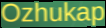
Ozhukap